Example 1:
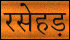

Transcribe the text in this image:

रसेहड़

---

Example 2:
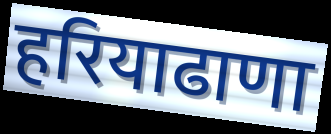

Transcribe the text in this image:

हरियाढाणा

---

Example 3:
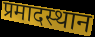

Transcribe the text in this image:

प्रमादस्थान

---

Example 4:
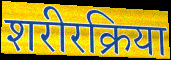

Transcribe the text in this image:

शरीरक्रिया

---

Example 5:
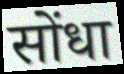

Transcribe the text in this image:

सोंधा